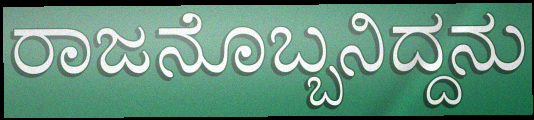
ರಾಜನೊಬ್ಬನಿದ್ದನು